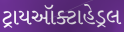
ટ્રાયઑક્ટાહેડ્રલ